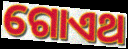
ଗୋଏଥ